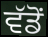
ਵੱਡੋਂ